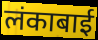
लंकाबाई